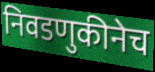
निवडणुकीनेच